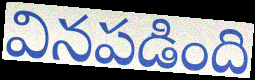
వినపడింది